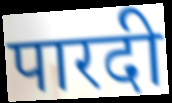
पारदी